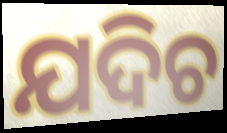
ଯଦିଚ